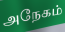
அநேகம்